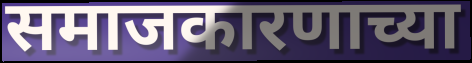
समाजकारणाच्या